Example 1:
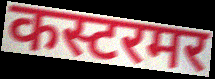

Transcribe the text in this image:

कस्टरमर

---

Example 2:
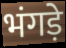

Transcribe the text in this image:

भंगड़े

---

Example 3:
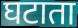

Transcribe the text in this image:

घटाता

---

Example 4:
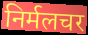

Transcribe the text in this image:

निर्मलचर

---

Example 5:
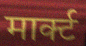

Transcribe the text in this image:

मार्क्ट